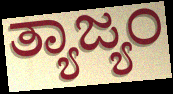
ತ್ಯಾಜ್ಯಂ